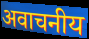
अवाचनीय